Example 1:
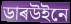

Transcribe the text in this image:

ডাৰউইনে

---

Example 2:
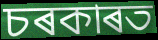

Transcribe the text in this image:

চৰকাৰত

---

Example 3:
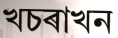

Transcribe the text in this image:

খচৰাখন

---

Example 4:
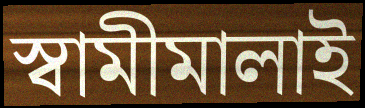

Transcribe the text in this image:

স্বামীমালাই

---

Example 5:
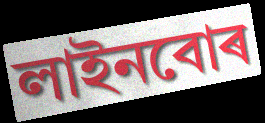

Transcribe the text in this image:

লাইনবোৰ